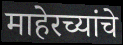
माहेरच्यांचे